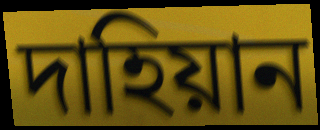
দাহিয়ান